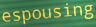
espousing